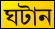
ঘটান